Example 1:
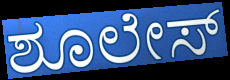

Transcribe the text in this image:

ಶೂಲೇಸ್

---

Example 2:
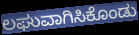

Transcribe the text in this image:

ಲಘುವಾಗಿಸಿಕೊಂಡು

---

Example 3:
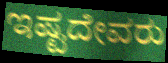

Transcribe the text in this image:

ಇಷ್ಟದೇವರು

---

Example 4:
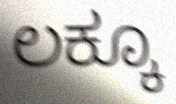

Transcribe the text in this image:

ಲಕ್ಕೂ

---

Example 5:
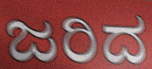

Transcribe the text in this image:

ಜರಿದ